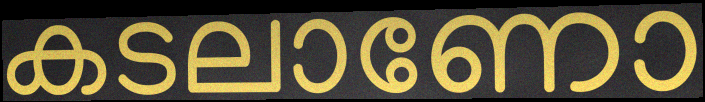
കടലാണോ